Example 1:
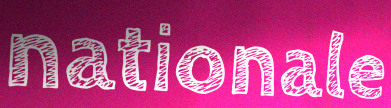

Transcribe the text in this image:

nationale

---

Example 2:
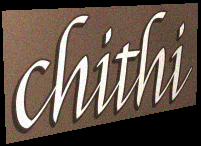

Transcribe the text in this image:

chithi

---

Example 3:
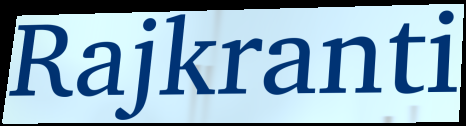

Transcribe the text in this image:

Rajkranti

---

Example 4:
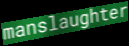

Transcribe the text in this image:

manslaughter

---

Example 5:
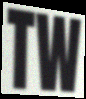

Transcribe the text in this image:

TW